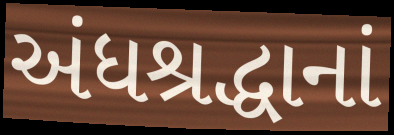
અંધશ્રદ્ધાનાં